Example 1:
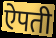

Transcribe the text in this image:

ऐपती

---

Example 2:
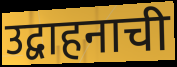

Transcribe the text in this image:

उद्वाहनाची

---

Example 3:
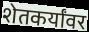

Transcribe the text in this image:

शेतकर्यांवर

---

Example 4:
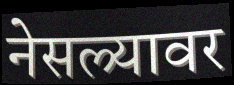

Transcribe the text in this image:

नेसल्यावर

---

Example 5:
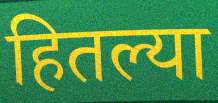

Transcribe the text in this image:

हितल्या